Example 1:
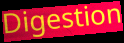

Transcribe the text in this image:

Digestion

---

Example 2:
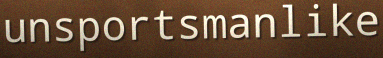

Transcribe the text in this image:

unsportsmanlike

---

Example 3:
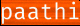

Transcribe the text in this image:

paathi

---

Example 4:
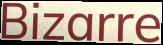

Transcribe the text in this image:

Bizarre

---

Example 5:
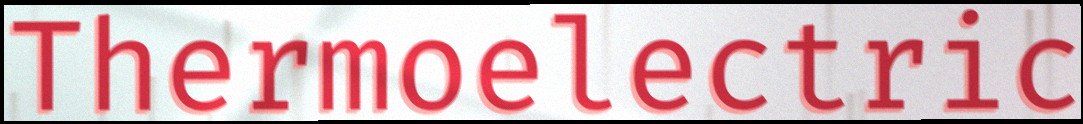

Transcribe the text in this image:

Thermoelectric